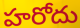
హరోదు